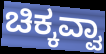
ಚಿಕ್ಕವ್ವಾ